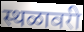
स्थळावरी